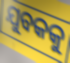
ଯୁବକକୁ